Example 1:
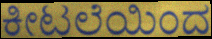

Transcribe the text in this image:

ಕೀಟಲೆಯಿಂದ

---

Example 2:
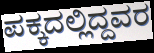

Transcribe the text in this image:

ಪಕ್ಕದಲ್ಲಿದ್ದವರ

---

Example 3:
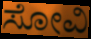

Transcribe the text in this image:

ಸೋವಿ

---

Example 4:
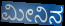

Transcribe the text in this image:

ಮೀನಿನ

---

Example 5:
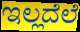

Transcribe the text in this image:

ಇಲ್ಲದೆಲೆ